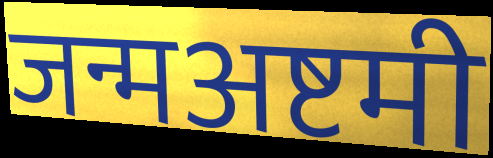
जन्मअष्टमी